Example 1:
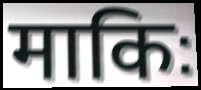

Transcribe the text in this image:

माकिः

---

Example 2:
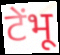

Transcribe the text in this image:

टेंभू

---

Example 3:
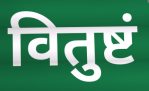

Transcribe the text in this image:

वितुष्टं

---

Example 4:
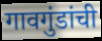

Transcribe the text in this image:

गावगुंडांची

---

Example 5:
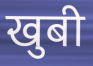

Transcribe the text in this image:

खुबी